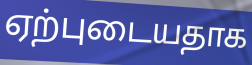
ஏற்புடையதாக